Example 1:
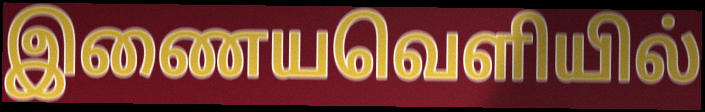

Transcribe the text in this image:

இணையவெளியில்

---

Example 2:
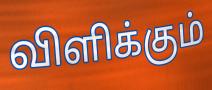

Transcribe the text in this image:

விளிக்கும்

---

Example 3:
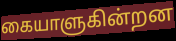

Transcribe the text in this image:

கையாளுகின்றன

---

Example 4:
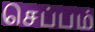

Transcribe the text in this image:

செப்பம்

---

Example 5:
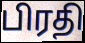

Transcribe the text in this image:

பிரதி